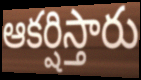
ఆకర్షిస్తారు